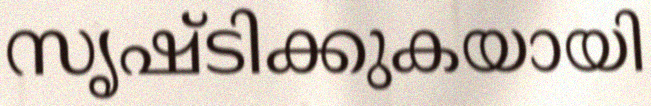
സൃഷ്ടിക്കുകയായി